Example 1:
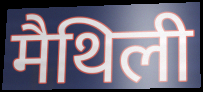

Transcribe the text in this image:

मैथिली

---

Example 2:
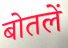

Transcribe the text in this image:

बोतलें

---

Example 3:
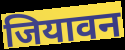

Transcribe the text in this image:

जियावन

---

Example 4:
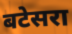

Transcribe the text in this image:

बटेसरा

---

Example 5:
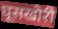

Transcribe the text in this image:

घूसखोरी